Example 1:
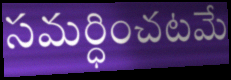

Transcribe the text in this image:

సమర్ధించటమే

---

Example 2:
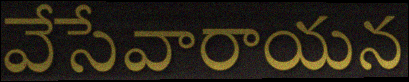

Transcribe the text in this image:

వేసేవారాయన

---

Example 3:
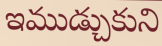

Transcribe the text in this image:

ఇముడ్చుకుని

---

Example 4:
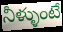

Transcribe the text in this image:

నీళ్ళుంటే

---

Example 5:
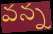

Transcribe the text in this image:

వన్న